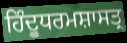
ਹਿੰਦੂਧਰਮਸ਼ਾਸਤ੍ਰ